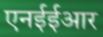
एनईईआर